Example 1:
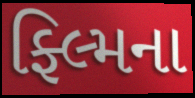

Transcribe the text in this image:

ફ્લ્મિના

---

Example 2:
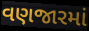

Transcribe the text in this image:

વણજારમાં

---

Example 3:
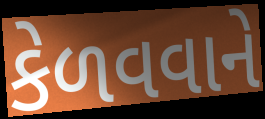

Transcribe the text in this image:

કેળવવાને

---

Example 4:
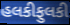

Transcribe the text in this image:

હલકીફુલકી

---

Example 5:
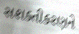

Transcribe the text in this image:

સશક્તીકરણને